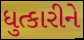
ધુત્કારીને